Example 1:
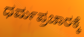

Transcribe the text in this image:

ಧರ್ಮಪ್ರಚಾರಕ್ಕೆ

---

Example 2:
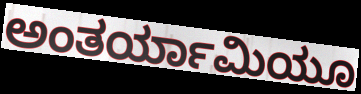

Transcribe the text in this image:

ಅಂತರ್ಯಾಮಿಯೂ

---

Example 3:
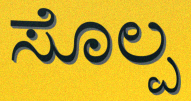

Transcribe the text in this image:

ಸೊಲ್ಪ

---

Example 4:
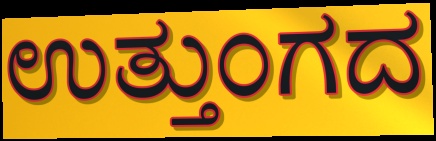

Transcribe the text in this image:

ಉತ್ತುಂಗದ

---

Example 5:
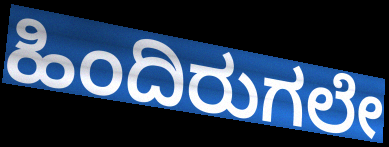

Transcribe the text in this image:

ಹಿಂದಿರುಗಲೇ